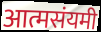
आत्मसंयमी